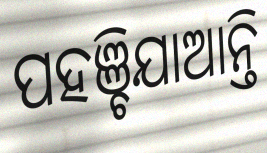
ପହଞ୍ଚିଯାଆନ୍ତି